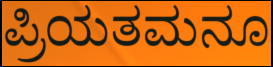
ಪ್ರಿಯತಮನೂ